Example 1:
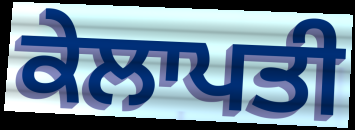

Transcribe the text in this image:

ਕੇਲਾਪਤੀ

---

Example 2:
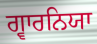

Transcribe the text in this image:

ਗ੍ਵਾਰਨਿਯਾ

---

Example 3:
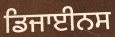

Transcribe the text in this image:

ਡਿਜਾਈਨਸ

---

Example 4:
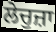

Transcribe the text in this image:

ਲੇਚੁਜ਼ਾ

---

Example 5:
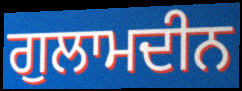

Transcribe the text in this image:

ਗੁਲਾਮਦੀਨ